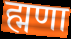
ह्मणा